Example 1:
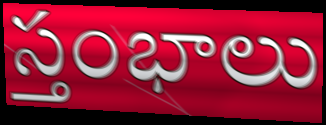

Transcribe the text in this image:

స్తంభాలు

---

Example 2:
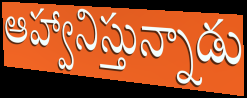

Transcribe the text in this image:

ఆహ్వానిస్తున్నాడు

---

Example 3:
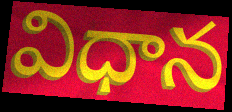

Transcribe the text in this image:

విధాన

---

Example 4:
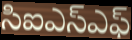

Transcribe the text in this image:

సిఐఎస్ఎఫ్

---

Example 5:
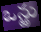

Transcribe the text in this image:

ఒన్ఱు